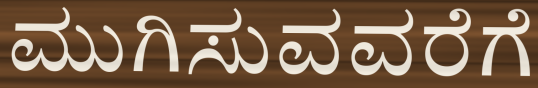
ಮುಗಿಸುವವರೆಗೆ